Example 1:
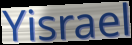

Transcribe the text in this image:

Yisrael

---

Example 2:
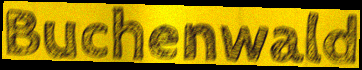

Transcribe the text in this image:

Buchenwald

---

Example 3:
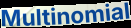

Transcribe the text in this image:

Multinomial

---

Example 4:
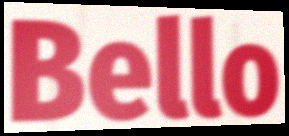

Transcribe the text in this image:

Bello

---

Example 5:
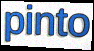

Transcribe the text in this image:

pinto